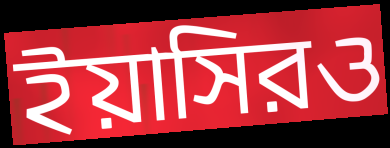
ইয়াসিরও